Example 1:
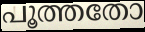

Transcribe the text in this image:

പൂത്തതോ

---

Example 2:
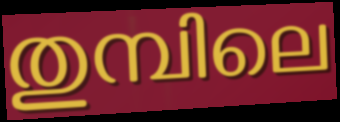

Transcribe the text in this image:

തുമ്പിലെ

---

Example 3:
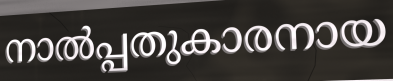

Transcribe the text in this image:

നാൽപ്പതുകാരനായ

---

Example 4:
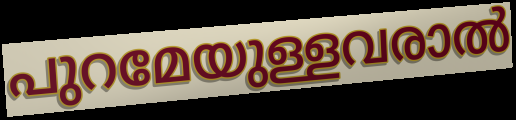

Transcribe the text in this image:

പുറമേയുള്ളവരാൽ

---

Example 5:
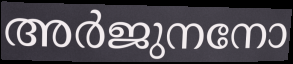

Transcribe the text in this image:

അർജുനനോ